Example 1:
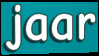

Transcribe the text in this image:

jaar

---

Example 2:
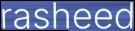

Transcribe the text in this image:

rasheed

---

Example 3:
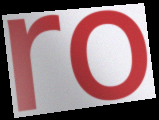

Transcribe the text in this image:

ro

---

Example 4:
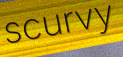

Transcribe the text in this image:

scurvy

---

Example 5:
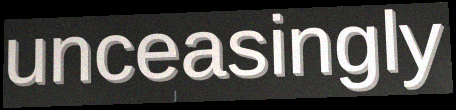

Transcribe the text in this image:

unceasingly